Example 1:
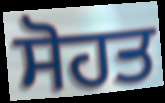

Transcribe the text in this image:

ਸੋਹਤ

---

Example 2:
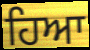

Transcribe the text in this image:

ਹਿਆ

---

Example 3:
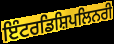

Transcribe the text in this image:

ਇੰਟਰਡਿਸ਼ਿਪਲਿਨਰੀ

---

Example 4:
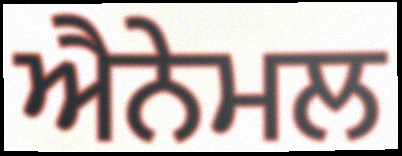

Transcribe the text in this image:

ਐਨੇਮਲ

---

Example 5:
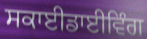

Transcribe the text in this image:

ਸਕਾਈਡਾਈਵਿੰਗ